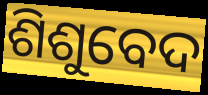
ଶିଶୁବେଦ